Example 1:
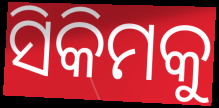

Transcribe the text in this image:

ସିକିମକୁ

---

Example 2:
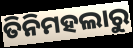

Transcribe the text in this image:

ତିନିମହଲାରୁ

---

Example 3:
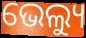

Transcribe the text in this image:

ଭେଲ୍ୟୁ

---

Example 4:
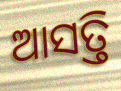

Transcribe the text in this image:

ଆସତ୍ତି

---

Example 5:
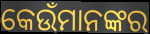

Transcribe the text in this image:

କେଉଁମାନଙ୍କର